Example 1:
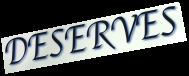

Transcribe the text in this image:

DESERVES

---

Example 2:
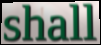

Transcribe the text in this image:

shall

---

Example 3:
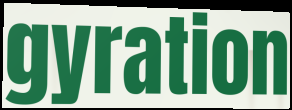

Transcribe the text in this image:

gyration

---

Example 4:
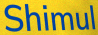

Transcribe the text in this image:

Shimul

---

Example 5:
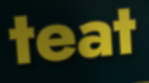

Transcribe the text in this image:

teat